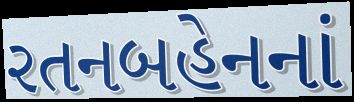
રતનબહેનનાં